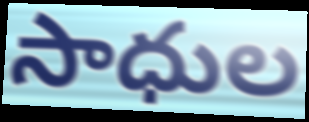
సాధుల